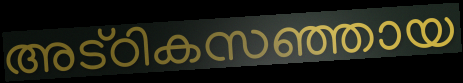
അട്ഠികസഞ്ഞായ